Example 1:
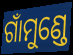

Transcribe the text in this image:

ଗାଁମୁଣ୍ଡେ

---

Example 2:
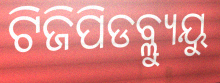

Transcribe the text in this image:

ଟିଜିପିଡବ୍ଲ୍ୟୁୟୁ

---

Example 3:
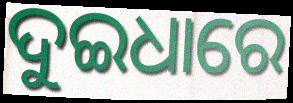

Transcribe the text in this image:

ଦୁଇଧାରେ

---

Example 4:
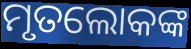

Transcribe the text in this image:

ମୃତଲୋକଙ୍କ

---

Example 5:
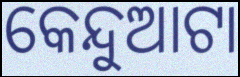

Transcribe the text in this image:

କେନ୍ଦୁଆଟା